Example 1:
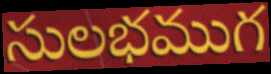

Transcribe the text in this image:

సులభముగ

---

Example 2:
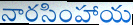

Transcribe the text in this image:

నారసింహాయ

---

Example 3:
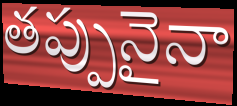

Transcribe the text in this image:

తప్పునైనా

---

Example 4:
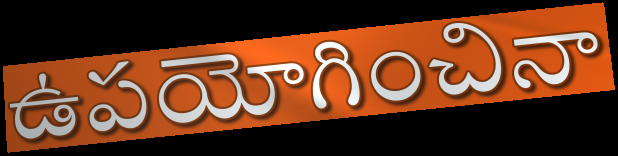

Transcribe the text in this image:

ఉపయోగించినా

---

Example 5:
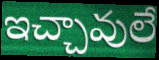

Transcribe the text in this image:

ఇచ్చావులే